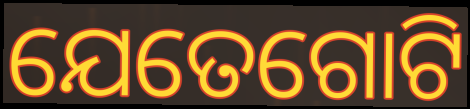
ଯେତେଗୋଟି